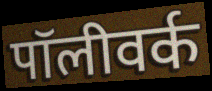
पॉलीवर्क